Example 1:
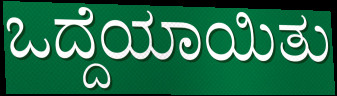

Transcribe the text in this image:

ಒದ್ದೆಯಾಯಿತು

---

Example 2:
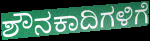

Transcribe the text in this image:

ಶೌನಕಾದಿಗಳಿಗೆ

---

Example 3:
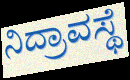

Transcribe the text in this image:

ನಿದ್ರಾವಸ್ಥೆ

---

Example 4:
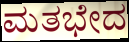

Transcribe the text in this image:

ಮತಭೇದ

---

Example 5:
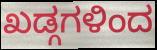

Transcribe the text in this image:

ಖಡ್ಗಗಳಿಂದ